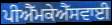
ਪੀਐੱਮਕੇਐੱਸਵਾਈ